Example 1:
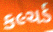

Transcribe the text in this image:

કલ્ચર્ડ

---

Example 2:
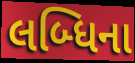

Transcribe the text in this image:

લબ્ધિના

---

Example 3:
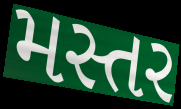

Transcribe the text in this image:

મસ્તર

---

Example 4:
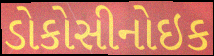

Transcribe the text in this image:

ડોકોસીનોઇક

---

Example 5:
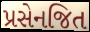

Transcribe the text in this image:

પ્રસેનજિત